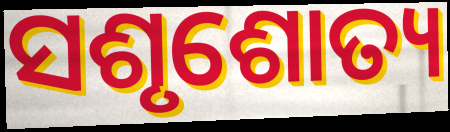
ସଶୃଶୋତ୍ୟ